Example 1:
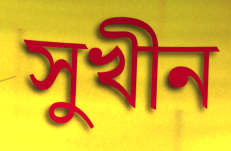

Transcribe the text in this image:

সুখীন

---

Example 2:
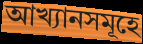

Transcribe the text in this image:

আখ্যানসমূহে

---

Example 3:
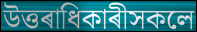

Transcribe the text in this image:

উত্তৰাধিকাৰীসকলে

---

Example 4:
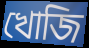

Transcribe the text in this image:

খোজি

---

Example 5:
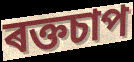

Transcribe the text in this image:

ৰক্তচাপ